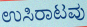
ಉಸಿರಾಟವು